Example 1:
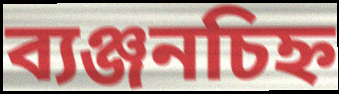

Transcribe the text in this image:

ব্যঞ্জনচিহ্ন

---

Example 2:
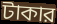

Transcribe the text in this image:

টাকার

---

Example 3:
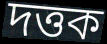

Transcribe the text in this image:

দত্তক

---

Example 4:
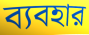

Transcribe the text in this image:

ব্যবহার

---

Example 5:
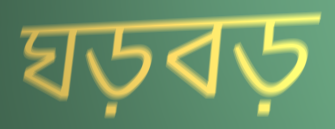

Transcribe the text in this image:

ঘড়বড়